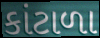
કાંટાળા